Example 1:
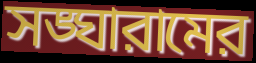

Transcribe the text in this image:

সঙ্ঘারামের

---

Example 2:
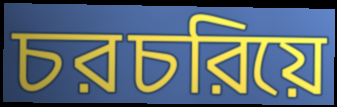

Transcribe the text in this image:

চরচরিয়ে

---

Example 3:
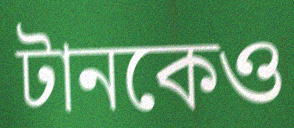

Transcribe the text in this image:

টানকেও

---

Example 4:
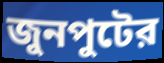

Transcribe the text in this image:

জুনপুটের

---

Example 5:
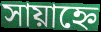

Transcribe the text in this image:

সায়াহ্নে